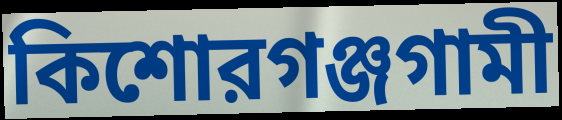
কিশোরগঞ্জগামী